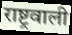
राष्ट्रवाली